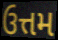
ઉત્તમ